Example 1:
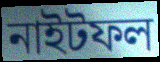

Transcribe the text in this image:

নাইটফল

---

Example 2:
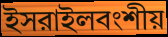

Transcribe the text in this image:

ইসরাইলবংশীয়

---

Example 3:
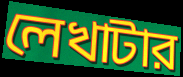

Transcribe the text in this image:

লেখাটার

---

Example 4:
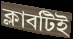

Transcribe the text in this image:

ক্লাবটিই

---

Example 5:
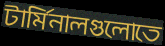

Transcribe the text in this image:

টার্মিনালগুলোতে